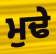
ਮੁਢੇ